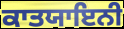
ਕਾਤਯਾਇਨੀ